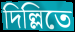
দিল্লিতে